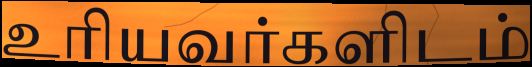
உரியவர்களிடம்